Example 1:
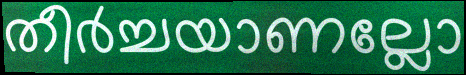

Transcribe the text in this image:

തീർച്ചയാണല്ലോ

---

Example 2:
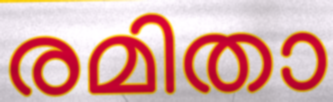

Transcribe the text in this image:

രമിതാ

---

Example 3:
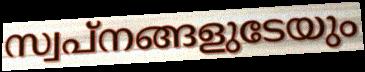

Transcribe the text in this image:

സ്വപ്നങ്ങളുടേയും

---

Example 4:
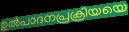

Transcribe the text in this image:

ഉൽപാദനപ്രക്രിയയെ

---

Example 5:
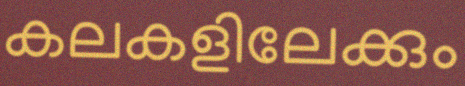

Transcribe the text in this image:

കലകളിലേക്കും